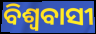
ବିଶ୍ୱବାସୀ